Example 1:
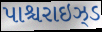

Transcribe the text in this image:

પાશ્ચરાઇઝ્ડ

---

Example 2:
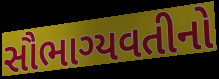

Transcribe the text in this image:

સૌભાગ્યવતીનો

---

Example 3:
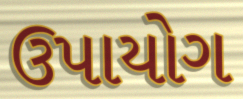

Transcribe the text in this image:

ઉપાયોગ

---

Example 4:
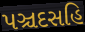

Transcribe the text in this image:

પઞ્ચદસહિ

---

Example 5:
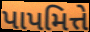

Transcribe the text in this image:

પાપમિત્તે